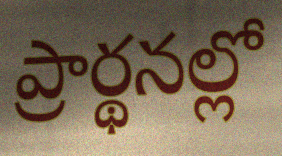
ప్రార్థనల్లో